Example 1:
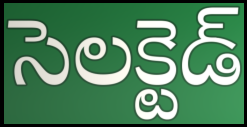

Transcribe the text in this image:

సెలక్టెడ్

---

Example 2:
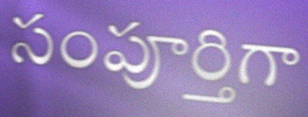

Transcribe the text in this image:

సంపూర్తిగా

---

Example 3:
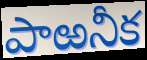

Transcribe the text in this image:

పాఱనీక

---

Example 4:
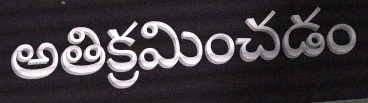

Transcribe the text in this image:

అతిక్రమించడం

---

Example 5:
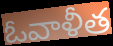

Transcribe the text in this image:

ఓవాళీత